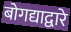
बोगद्याद्वारे